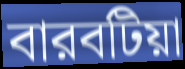
বারবটিয়া